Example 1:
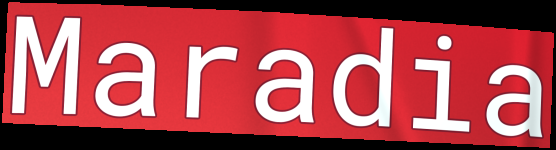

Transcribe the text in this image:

Maradia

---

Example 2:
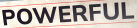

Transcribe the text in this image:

POWERFUL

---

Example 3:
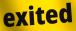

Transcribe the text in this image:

exited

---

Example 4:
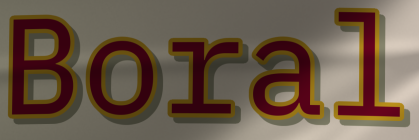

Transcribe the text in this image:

Boral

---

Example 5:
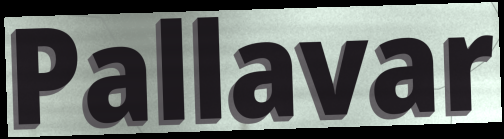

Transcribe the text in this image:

Pallavar